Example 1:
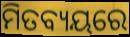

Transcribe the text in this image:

ମିତବ୍ୟୟରେ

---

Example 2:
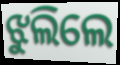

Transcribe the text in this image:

ଝୁଲିଲେ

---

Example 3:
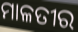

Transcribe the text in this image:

ମାଳତୀର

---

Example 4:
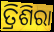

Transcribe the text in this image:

ତ୍ରିଶିରା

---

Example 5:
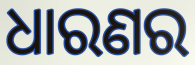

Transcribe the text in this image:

ଧାରଣର